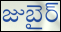
జుబైర్